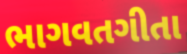
ભાગવતગીતા